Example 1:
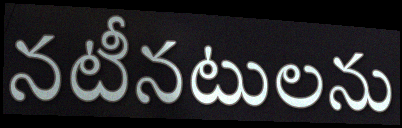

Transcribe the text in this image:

నటీనటులను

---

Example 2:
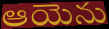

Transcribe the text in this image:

ఆయెను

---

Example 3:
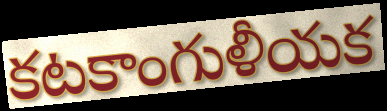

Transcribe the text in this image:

కటకాంగుళీయక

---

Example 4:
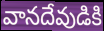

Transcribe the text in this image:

వానదేవుడికి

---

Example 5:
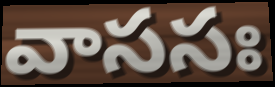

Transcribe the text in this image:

వాససః